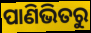
ପାଣିଭିତରୁ